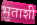
भुताशी